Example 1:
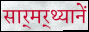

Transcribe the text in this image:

सार्मर्थ्यानें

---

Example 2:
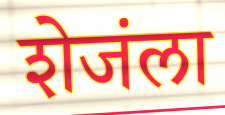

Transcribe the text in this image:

शेजंला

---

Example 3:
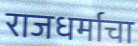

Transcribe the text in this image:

राजधर्माचा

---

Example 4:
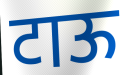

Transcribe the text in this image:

टाऊ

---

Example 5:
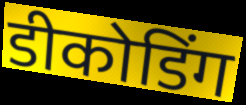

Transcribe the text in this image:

डीकोडिंग